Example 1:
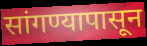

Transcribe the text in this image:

सांगण्यापासून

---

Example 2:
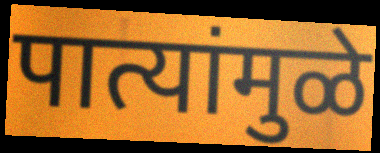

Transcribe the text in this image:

पात्यांमुळे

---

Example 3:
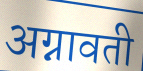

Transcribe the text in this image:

अग्नावती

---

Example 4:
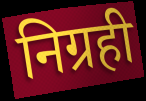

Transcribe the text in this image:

निग्रही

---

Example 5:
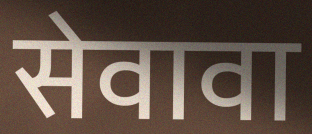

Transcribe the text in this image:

सेवावा